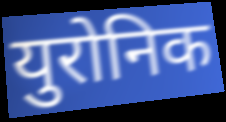
युरोनिक